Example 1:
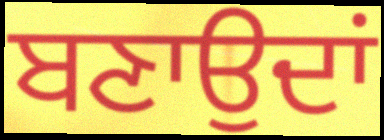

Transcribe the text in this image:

ਬਣਾਉਦਾਂ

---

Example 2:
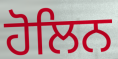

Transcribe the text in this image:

ਹੋਲਿਨ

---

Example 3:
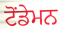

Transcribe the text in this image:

ਟੋਂਡੇਮਨ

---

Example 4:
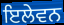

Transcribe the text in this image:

ਇਲੇਵਨ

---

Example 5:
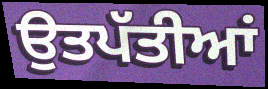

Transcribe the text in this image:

ਉਤਪੱਤੀਆਂ